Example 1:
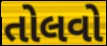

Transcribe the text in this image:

તોલવો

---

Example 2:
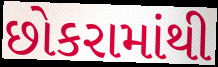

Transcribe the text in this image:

છોકરામાંથી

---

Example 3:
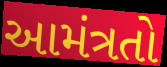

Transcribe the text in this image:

આમંત્રતો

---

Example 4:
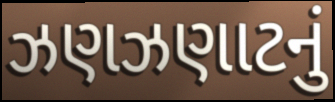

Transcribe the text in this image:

ઝણઝણાટનું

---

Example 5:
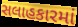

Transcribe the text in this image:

સલાહકારમાં